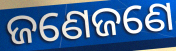
ଜଣେଜଣେ